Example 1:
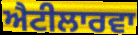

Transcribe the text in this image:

ਐਟੀਲਾਰਵਾ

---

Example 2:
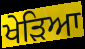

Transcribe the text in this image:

ਖੇੜਿਆ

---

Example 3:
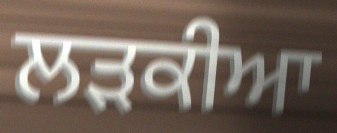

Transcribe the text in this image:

ਲੜਕੀਆ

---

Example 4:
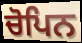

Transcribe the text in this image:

ਚੋਪਿਨ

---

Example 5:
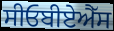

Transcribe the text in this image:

ਸੀਓਬੀਏਐੱਸ